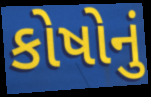
કોષોનું